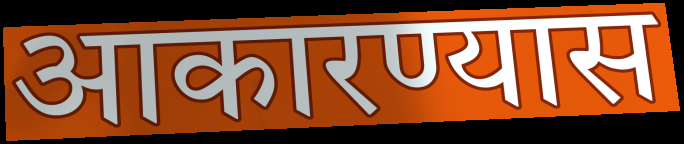
आकारण्यास